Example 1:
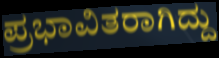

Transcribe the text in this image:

ಪ್ರಭಾವಿತರಾಗಿದ್ದು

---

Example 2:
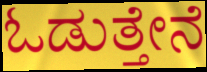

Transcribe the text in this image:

ಓಡುತ್ತೇನೆ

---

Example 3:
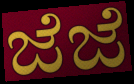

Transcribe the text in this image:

ಜೆಜೆ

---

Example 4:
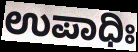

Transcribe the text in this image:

ಉಪಾಧಿಃ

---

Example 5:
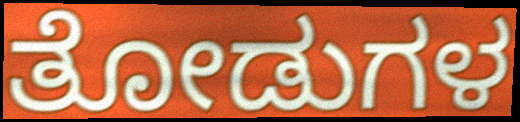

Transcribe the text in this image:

ತೋಡುಗಳ